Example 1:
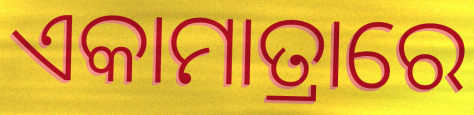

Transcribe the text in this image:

ଏକାମାତ୍ରାରେ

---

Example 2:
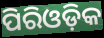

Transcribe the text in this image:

ପିରିଓଡ଼ିକ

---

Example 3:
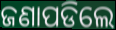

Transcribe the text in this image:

ଜଣାପଡିଲେ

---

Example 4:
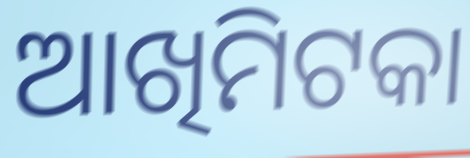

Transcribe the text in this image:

ଆଖିମିଟକା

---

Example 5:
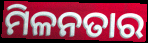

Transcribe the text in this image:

ମିଳନତାର